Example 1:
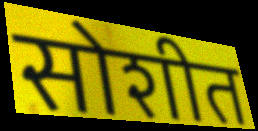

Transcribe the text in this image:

सोशीत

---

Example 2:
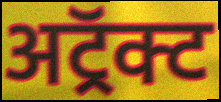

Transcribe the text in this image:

अट्रॅक्ट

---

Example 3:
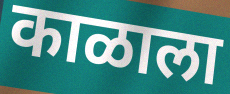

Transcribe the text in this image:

काळाला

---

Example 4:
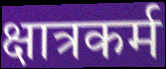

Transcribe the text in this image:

क्षात्रकर्म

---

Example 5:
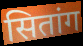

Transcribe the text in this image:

सितांग